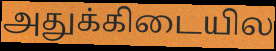
அதுக்கிடையில